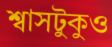
শ্বাসটুকুও